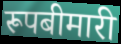
रूपबीमारी